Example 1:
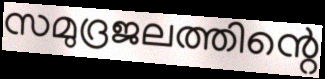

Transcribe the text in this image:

സമുദ്രജലത്തിന്റെ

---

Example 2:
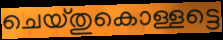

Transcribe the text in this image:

ചെയ്തുകൊള്ളട്ടെ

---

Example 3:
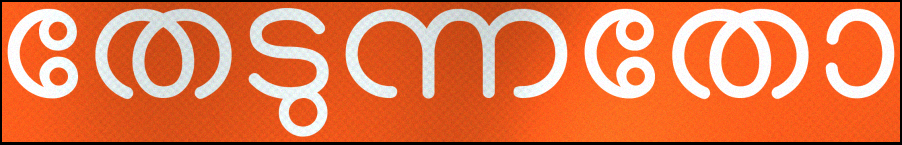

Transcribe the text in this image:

തേടുന്നതോ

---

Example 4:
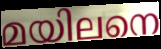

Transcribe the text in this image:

മയിലനെ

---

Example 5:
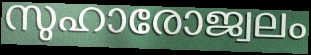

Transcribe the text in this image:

സുഹാരോജ്വലം